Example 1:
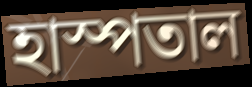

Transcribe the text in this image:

হাস্পতাল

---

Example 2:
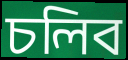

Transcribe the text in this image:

চলিব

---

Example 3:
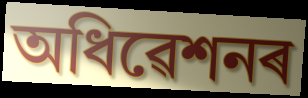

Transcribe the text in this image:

অধিৱেশনৰ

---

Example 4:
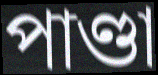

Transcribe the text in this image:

পাণ্ডা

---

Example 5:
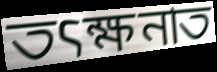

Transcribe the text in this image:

তৎক্ষনাত